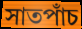
সাতপাঁচ